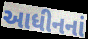
આધીનનાં